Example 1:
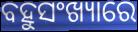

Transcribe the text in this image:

ବହୁସଂଖ୍ୟାରେ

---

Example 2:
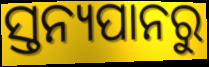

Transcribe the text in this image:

ସ୍ତନ୍ୟପାନରୁ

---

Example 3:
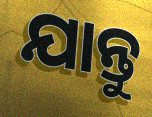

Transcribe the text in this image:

ଯାନ୍ତୁ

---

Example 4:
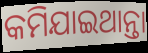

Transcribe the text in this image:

କମିଯାଇଥାନ୍ତା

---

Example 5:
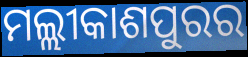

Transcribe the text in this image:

ମଲ୍ଲୀକାଶପୁରର